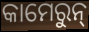
କାମେରୁନ୍